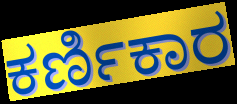
ಕರ್ಣಿಕಾರ